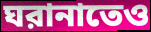
ঘরানাতেও